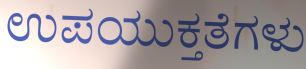
ಉಪಯುಕ್ತತೆಗಳು